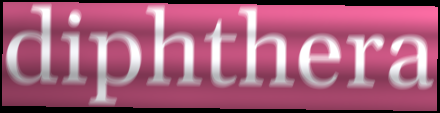
diphthera